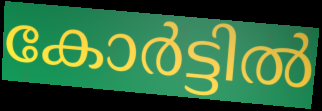
കോർട്ടിൽ